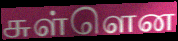
சுள்ளென